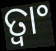
ତ୍ୱାଂ